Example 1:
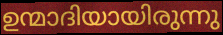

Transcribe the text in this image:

ഉന്മാദിയായിരുന്നു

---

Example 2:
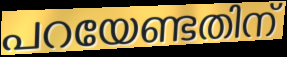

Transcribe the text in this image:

പറയേണ്ടതിന്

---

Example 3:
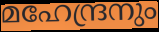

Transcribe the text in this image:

മഹേന്ദ്രനും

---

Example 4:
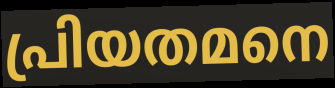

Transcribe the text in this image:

പ്രിയതമനെ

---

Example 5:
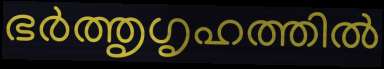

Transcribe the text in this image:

ഭർത്തൃഗൃഹത്തിൽ